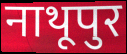
नाथूपुर